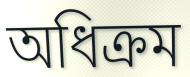
অধিক্রম